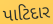
પાટિદાર